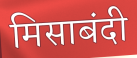
मिसाबंदी